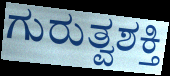
ಗುರುತ್ವಶಕ್ತಿ